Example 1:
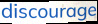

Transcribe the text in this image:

discourage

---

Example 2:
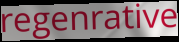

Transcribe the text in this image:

regenrative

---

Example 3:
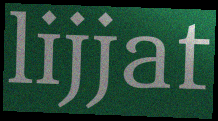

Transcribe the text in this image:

lijjat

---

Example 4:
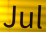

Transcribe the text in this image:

Jul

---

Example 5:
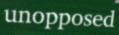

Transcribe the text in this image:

unopposed